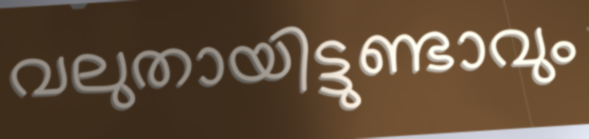
വലുതായിട്ടുണ്ടാവും